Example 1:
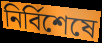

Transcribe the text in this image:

নির্বিশেষে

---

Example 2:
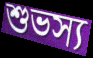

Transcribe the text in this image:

শুভস্য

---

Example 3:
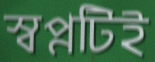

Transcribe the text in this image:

স্বপ্নটিই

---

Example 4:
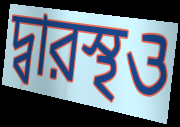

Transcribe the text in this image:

দ্বারস্থও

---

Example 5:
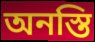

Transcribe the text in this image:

অনস্তি